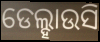
ଡେଲ୍ହାଉସି